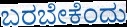
ಬರಬೇಕೆಂದು